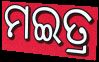
ମଇତ୍ର